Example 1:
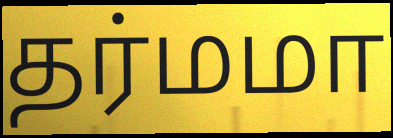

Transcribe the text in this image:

தர்மமா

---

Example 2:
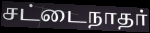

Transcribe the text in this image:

சட்டைநாதர்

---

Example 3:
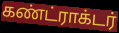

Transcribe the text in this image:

கண்ட்ராக்டர்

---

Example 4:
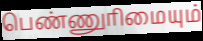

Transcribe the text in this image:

பெண்ணுரிமையும்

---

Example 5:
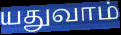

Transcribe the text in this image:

யதுவாம்